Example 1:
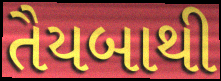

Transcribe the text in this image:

તૈયબાથી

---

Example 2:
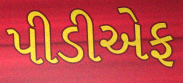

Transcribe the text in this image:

પીડીએફ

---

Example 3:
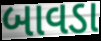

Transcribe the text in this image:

બાવડા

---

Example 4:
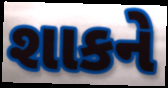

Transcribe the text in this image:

શાકને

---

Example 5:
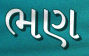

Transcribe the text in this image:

ભણ